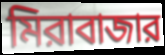
মিরাবাজার